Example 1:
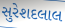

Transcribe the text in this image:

સુરેશદલાલ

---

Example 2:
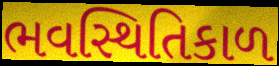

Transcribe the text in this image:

ભવસ્થિતિકાળ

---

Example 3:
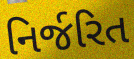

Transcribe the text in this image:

નિર્જરિત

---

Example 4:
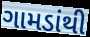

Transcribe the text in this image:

ગામડાંથી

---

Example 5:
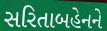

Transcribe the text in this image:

સરિતાબહેનને